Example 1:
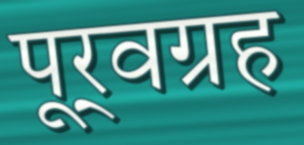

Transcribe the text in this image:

पूर्वग्रह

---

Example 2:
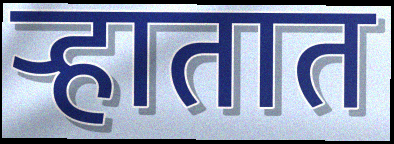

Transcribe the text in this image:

ऱ्हातात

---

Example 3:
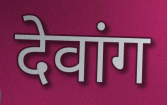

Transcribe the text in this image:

देवांग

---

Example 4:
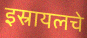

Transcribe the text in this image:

इस्रायलचे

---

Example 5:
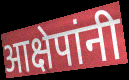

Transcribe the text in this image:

आक्षेपांनी